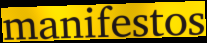
manifestos